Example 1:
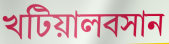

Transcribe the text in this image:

খটিয়ালবসান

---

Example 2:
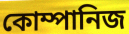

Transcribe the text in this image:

কোম্পানিজ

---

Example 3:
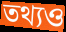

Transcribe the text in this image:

তথ্যও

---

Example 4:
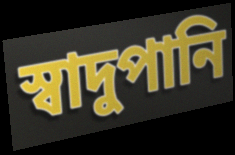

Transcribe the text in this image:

স্বাদুপানি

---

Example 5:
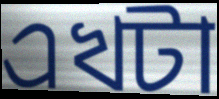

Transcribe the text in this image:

এখটা